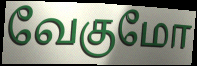
வேகுமோ